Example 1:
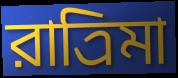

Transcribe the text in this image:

রাত্রিমা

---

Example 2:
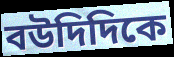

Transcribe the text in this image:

বউদিদিকে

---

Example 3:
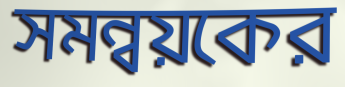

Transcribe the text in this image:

সমন্বয়কের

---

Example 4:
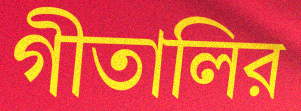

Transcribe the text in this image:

গীতালির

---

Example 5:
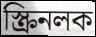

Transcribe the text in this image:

স্ক্রিনলক